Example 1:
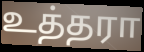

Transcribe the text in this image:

உத்தரா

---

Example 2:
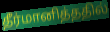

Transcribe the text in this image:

தீர்மானித்ததில்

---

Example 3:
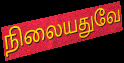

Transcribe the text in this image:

நிலையதுவே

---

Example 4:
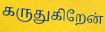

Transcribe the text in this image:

கருதுகிறேன்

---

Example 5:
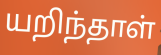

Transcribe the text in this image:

யறிந்தாள்